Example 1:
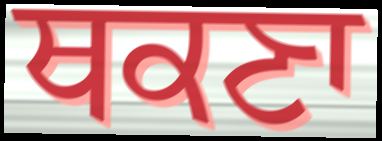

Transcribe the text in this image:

ਥਕਣਾ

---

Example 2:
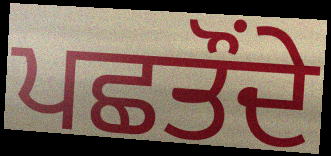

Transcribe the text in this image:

ਪਛਤੌਂਦੇ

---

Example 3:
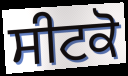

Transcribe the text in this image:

ਸੀਟਕੋ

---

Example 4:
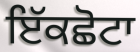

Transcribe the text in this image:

ਇੱਕਛੋਟਾ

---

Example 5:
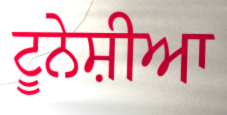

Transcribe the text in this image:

ਟੂਨੇਸ਼ੀਆ